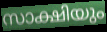
സാക്ഷിയും